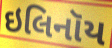
ઇલિનૉય